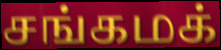
சங்கமக்